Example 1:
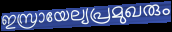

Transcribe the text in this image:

ഇസ്രായേല്യപ്രമുഖരും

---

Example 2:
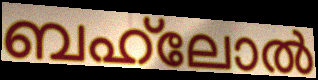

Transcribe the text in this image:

ബഹ്‌ലോൽ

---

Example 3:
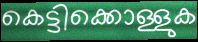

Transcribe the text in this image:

കെട്ടിക്കൊള്ളുക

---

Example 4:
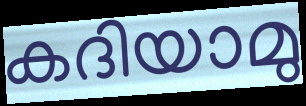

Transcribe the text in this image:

കദിയാമു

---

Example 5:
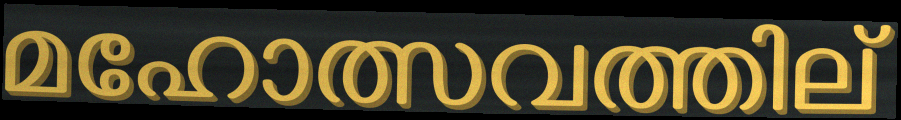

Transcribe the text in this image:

മഹോത്സവത്തില്